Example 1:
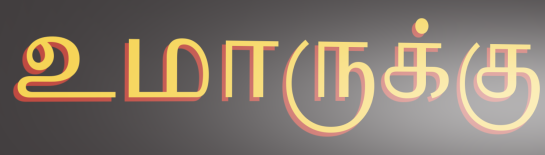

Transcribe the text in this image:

உமாருக்கு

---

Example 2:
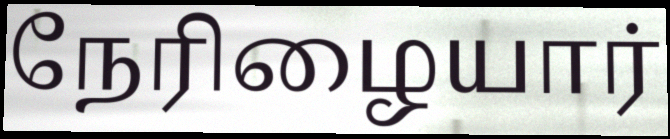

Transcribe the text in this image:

நேரிழையார்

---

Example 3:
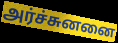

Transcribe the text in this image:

அர்ச்சுனனை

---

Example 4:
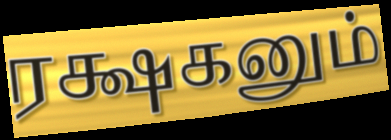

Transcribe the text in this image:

ரக்ஷகனும்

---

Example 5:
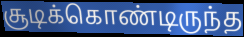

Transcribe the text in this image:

சூடிக்கொண்டிருந்த